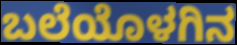
ಬಲೆಯೊಳಗಿನ